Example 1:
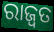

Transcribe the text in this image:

ରାଜ୍ୱତ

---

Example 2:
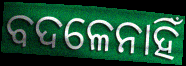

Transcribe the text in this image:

ବଦଳେନାହିଁ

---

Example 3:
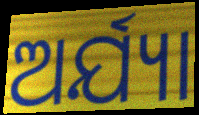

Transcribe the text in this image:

ଅର୍ଯ୍ୟା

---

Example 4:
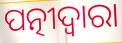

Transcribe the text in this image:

ପତ୍ନୀଦ୍ୱାରା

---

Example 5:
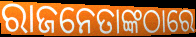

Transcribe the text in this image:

ରାଜନେତାଙ୍କଠାରେ